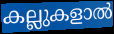
കല്ലുകളാൽ